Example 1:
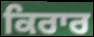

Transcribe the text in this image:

ਕਿਰਾਰ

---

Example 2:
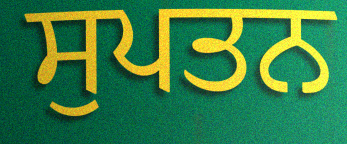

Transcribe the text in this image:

ਸੁਪਤਨ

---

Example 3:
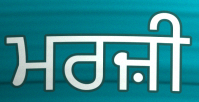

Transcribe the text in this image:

ਮਰਜ਼ੀ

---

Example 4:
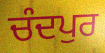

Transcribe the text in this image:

ਚੰਦਪੁਰ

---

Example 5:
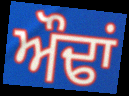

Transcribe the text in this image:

ਔਢਾਂ